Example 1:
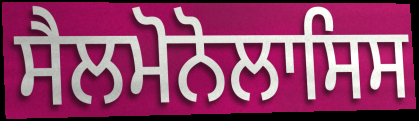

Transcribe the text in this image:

ਸੈਲਮੋਨੋਲਾਸਿਸ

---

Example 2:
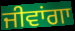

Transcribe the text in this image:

ਜੀਵਾਂਗਾ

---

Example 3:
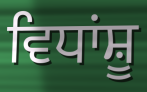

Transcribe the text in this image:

ਵਿਧਾਂਸ਼ੂ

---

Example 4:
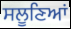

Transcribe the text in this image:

ਸਲੂਣਿਆਂ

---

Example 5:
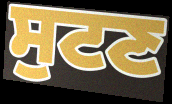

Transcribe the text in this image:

ਸੁਟਣ